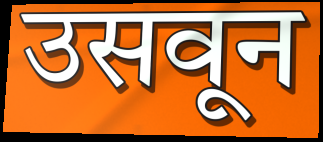
उसवून